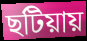
ছটিয়ায়